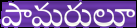
పామరులూ